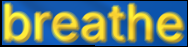
breathe